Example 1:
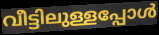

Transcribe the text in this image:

വീട്ടിലുള്ളപ്പോൾ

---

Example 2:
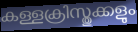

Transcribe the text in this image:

കള്ളക്രിസ്തുക്കളും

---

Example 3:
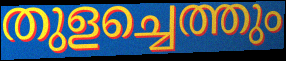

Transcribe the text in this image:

തുളച്ചെത്തും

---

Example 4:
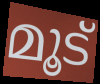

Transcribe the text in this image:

മൂട്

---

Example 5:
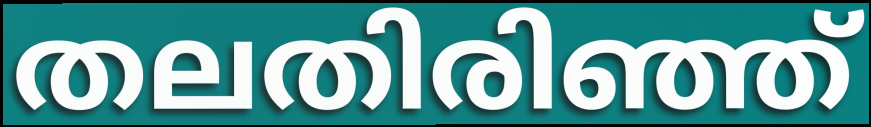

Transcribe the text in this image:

തലതിരിഞ്ഞ്